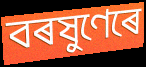
বৰষুণেৰে